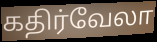
கதிர்வேலா